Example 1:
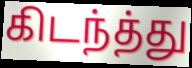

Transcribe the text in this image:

கிடந்த்து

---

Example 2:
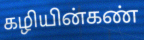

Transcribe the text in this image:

கழியின்கண்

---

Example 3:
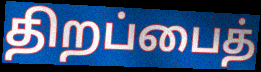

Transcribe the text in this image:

திறப்பைத்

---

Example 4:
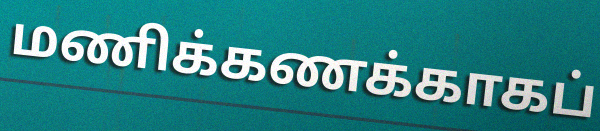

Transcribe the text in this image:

மணிக்கணக்காகப்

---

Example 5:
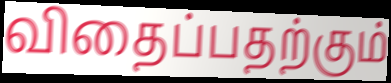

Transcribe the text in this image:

விதைப்பதற்கும்